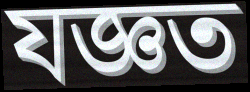
যজ্ঞত